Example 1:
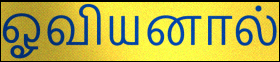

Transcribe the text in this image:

ஓவியனால்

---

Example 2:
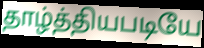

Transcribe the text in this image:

தாழ்த்தியபடியே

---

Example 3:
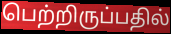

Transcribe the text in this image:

பெற்றிருப்பதில்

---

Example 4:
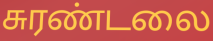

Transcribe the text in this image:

சுரண்டலை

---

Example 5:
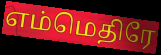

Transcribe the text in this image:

எம்மெதிரே